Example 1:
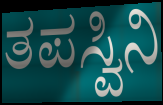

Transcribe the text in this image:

ತಪಸ್ವಿನಿ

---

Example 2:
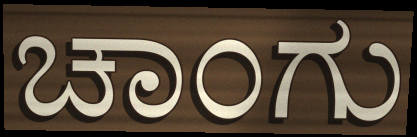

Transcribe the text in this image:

ಚಾಂಗು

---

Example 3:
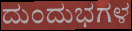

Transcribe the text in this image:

ದುಂದುಭಗಳ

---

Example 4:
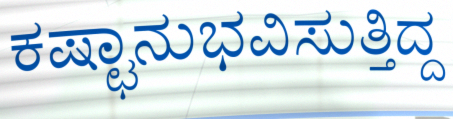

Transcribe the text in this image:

ಕಷ್ಟಾನುಭವಿಸುತ್ತಿದ್ದ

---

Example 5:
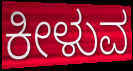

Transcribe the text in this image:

ಕೀಳುವ